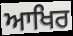
ਆਖਿਰ